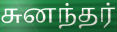
சுனந்தர்